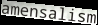
amensalism